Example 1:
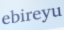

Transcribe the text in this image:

ebireyu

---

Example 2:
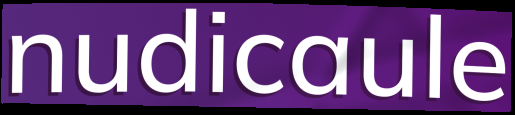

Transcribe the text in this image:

nudicaule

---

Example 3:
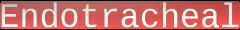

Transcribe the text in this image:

Endotracheal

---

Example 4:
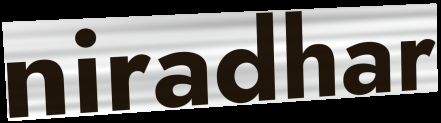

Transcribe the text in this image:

niradhar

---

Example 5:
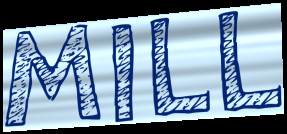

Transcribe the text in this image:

MILL